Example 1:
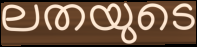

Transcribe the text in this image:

ലതയുടെ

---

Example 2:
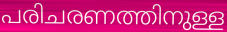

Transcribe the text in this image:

പരിചരണത്തിനുള്ള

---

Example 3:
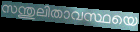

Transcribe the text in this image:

സന്തുലിതാവസ്ഥയെ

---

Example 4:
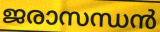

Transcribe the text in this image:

ജരാസന്ധൻ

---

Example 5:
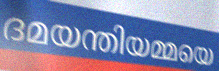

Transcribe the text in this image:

ദമയന്തിയമ്മയെ